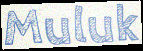
Muluk